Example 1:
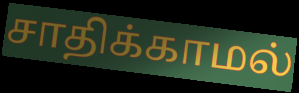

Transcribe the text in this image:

சாதிக்காமல்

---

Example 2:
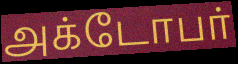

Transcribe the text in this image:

அக்டோபர்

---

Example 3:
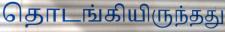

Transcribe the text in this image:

தொடங்கியிருந்தது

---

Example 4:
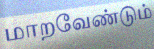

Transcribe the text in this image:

மாறவேண்டும்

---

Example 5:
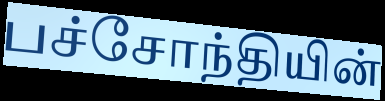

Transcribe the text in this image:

பச்சோந்தியின்